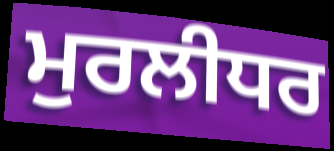
ਮੁਰਲੀਧਰ